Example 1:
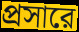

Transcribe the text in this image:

প্রসারে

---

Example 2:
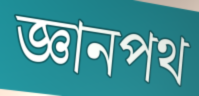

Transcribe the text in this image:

জ্ঞানপথ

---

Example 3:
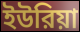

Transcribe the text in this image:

ইউরিয়া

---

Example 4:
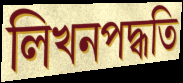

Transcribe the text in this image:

লিখনপদ্ধতি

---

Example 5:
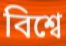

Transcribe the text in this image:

বিশ্বে